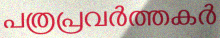
പത്രപ്രവർത്തകർ